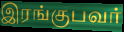
இரங்குபவர்